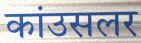
कांउसलर